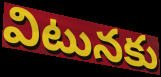
విటునకు